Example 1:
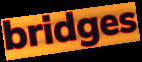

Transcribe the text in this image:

bridges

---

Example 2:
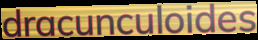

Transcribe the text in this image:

dracunculoides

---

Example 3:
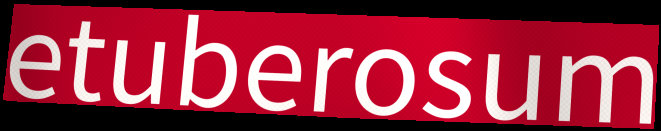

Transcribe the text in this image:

etuberosum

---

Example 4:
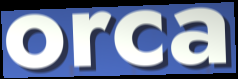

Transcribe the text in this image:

orca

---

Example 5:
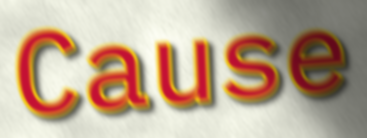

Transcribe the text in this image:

Cause